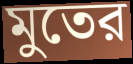
মুতের